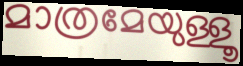
മാത്രമേയുള്ളൂ